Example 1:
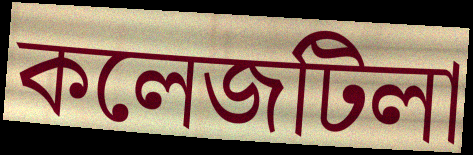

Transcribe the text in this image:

কলেজটিলা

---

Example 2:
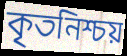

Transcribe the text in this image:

কৃতনিশ্চয়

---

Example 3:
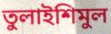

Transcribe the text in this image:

তুলাইশিমুল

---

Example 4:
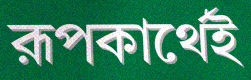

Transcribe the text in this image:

রূপকার্থেই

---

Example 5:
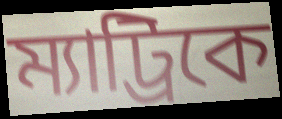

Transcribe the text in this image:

ম্যাট্রিকে